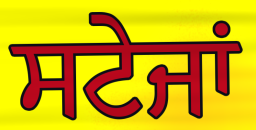
ਸਟੇਜਾਂ